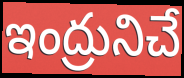
ఇంద్రునిచే